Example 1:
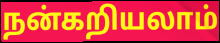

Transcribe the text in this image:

நன்கறியலாம்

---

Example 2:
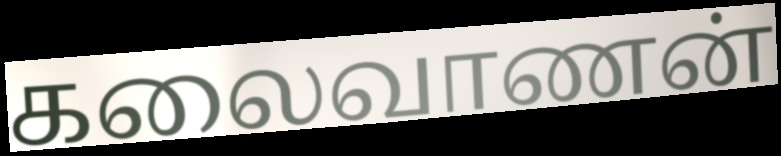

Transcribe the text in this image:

கலைவாணன்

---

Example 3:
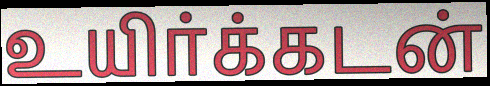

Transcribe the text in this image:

உயிர்க்கடன்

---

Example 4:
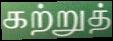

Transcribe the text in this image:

கற்றுத்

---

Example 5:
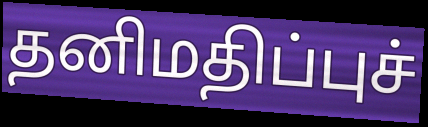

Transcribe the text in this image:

தனிமதிப்புச்